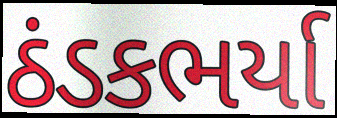
ઠંડકભર્યા